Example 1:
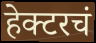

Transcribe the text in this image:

हेक्टरचं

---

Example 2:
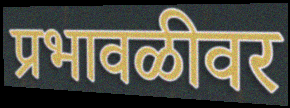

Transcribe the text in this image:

प्रभावळीवर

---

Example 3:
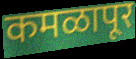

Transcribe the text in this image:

कमळापूर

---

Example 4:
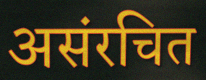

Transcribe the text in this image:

असंरचित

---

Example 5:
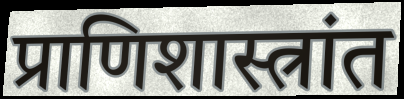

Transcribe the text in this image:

प्राणिशास्त्रांत